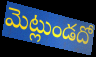
మెట్లుండదో